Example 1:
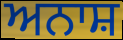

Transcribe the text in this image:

ਅਨਾਸ਼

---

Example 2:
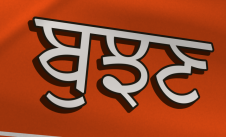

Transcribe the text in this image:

ਬੁਝਣ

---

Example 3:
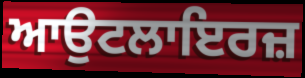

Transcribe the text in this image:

ਆਉਟਲਾਇਰਜ਼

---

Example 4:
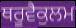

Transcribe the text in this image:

ਥਰੂਵੈਕੁਲਮ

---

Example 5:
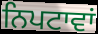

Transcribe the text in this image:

ਨਿਪਟਾਵਾਂ